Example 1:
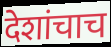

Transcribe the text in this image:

देशांचाच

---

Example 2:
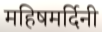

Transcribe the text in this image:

महिषमर्दिनी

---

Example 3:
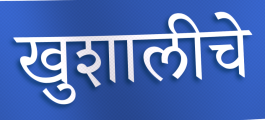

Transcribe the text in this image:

खुशालीचे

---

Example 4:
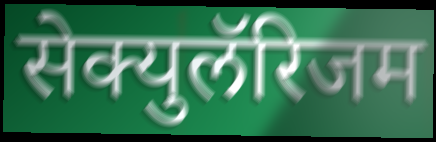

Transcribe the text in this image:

सेक्युलॅरिजम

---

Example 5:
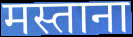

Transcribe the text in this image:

मस्ताना